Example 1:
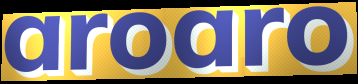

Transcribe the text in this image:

aroaro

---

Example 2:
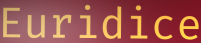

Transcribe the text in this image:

Euridice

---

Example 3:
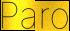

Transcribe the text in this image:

Paro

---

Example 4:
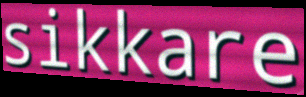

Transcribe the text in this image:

sikkare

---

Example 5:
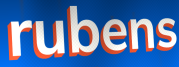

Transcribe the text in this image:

rubens